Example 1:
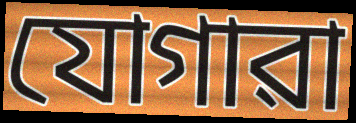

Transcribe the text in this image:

যোগাৱা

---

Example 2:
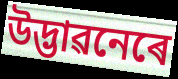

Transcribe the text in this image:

উদ্ভাৱনেৰে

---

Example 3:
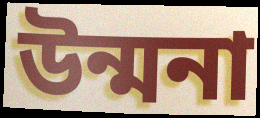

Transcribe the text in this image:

উন্মনা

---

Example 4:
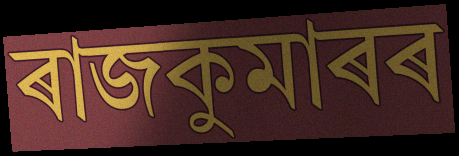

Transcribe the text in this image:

ৰাজকুমাৰৰ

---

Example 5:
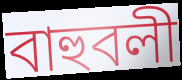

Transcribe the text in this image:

বাহুবলী